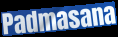
Padmasana